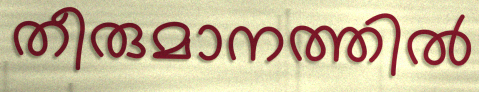
തീരുമാനത്തിൽ